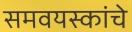
समवयस्कांचे